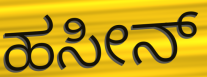
ಹಸೀನ್